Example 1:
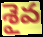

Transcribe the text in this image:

శైవ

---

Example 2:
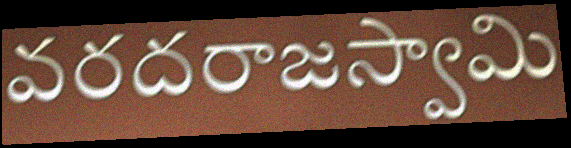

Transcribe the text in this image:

వరదరాజస్వామి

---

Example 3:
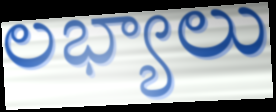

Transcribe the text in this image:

లభ్యాలు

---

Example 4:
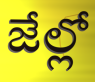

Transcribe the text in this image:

జేల్లో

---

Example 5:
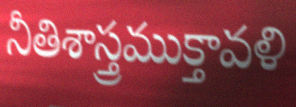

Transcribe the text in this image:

నీతిశాస్త్రముక్తావళి